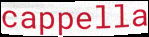
cappella